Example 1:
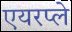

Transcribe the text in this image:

एयरप्ले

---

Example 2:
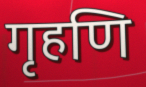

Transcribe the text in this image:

गृहणि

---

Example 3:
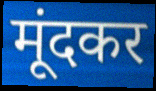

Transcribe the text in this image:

मूंदकर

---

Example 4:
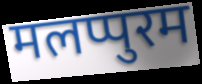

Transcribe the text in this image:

मलप्पुरम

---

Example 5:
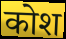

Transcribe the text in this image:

कोश